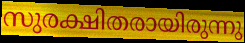
സുരക്ഷിതരായിരുന്നു